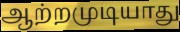
ஆற்றமுடியாது